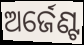
ଅର୍ଜେଣ୍ଟ